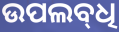
ଉପଲବ୍‍ଧି